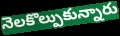
నెలకొల్పుకున్నారు